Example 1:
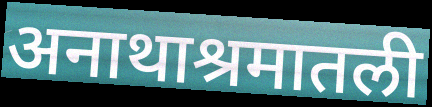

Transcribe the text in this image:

अनाथाश्रमातली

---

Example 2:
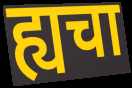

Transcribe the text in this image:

ह्यचा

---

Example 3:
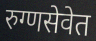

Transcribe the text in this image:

रुग्णसेवेत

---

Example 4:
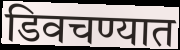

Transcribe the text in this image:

डिवचण्यात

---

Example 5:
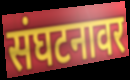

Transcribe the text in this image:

संघटनावर